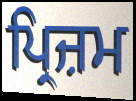
ਪ੍ਰਿਜ਼ਮ